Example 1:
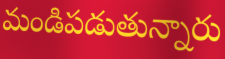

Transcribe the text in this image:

మండిపడుతున్నారు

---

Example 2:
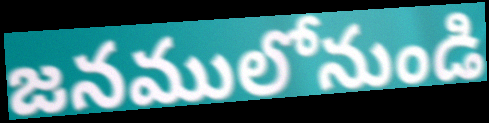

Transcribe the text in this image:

జనములోనుండి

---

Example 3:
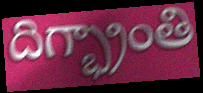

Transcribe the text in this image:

దిగ్భ్రాంతి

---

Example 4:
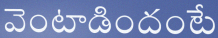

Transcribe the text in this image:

వెంటాడిందంటే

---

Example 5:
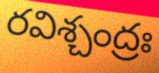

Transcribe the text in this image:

రవిశ్చంద్రః